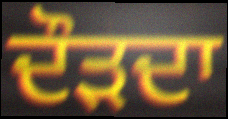
ਦੌੜਦਾ